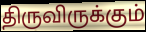
திருவிருக்கும்